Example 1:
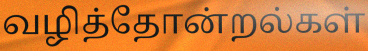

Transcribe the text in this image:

வழித்தோன்றல்கள்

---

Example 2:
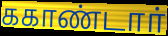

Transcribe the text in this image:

ககாண்டார்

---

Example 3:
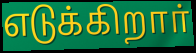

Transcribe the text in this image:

எடுக்கிறார்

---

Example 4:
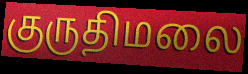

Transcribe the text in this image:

குருதிமலை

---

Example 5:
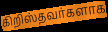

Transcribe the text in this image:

கிறிஸ்தவர்களாக